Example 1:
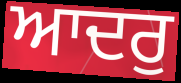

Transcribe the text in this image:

ਆਦਰੁ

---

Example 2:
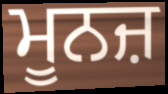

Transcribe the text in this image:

ਮੂਨਜ਼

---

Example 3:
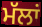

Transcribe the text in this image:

ਮੱਲਾਂ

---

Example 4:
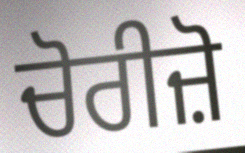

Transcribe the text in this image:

ਚੋਰੀਜ਼ੋ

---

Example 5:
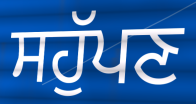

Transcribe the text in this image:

ਸਹੁੱਪਣ